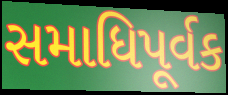
સમાધિપૂર્વક